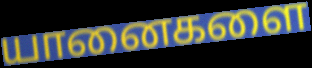
யானைகளை